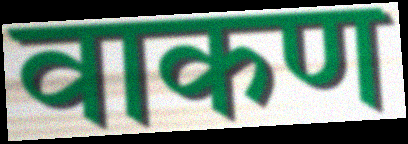
वाकण